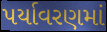
પર્યાવરણમાં